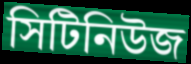
সিটিনিউজ